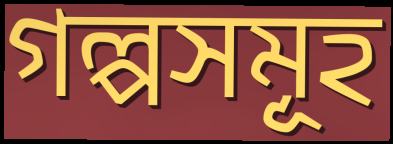
গল্পসমূহ